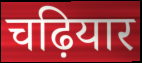
चढ़ियार